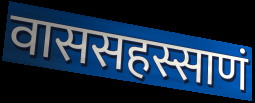
वाससहस्साणं